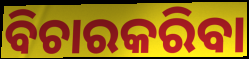
ବିଚାରକରିବା